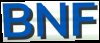
BNF